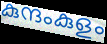
കുന്ദംകുളം